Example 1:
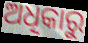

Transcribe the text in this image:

ଅଧିକାରୁ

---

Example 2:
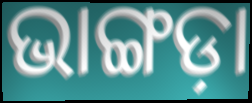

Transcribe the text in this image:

ଭାଙ୍ଗଡ଼ା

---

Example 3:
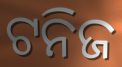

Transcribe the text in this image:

ଟନିଜ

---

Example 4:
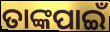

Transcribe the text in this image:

ତାଙ୍କପାଇଁ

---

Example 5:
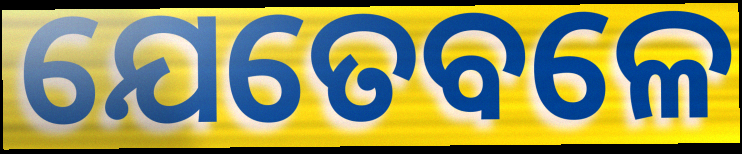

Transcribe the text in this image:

ଯେତେବଳେ